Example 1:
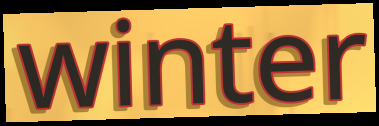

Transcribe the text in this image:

winter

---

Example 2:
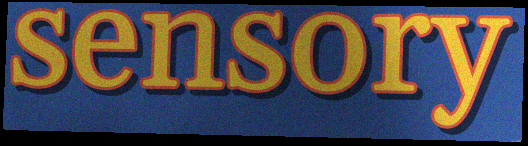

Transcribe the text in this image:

sensory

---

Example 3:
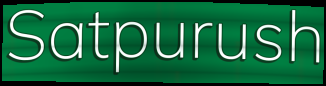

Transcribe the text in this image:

Satpurush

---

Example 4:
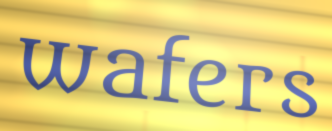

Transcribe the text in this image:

wafers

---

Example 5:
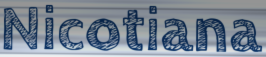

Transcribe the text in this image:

Nicotiana